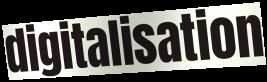
digitalisation